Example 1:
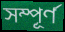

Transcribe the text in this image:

সম্পূৰ্ণ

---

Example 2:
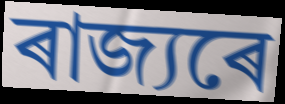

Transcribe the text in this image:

ৰাজ্যৰে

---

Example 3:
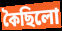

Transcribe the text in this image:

কৈছিলো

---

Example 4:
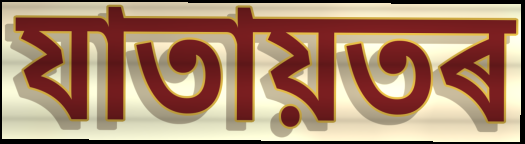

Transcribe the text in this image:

যাতায়তৰ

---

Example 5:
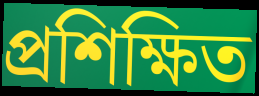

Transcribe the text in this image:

প্ৰশিক্ষিত